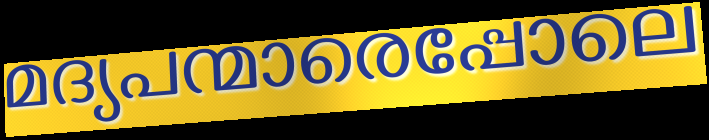
മദ്യപന്മാരെപ്പോലെ